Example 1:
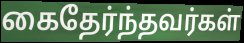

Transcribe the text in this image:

கைதேர்ந்தவர்கள்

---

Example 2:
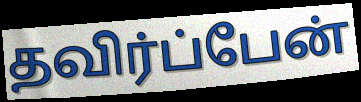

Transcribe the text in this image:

தவிர்ப்பேன்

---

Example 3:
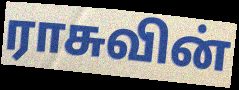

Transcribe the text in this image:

ராசுவின்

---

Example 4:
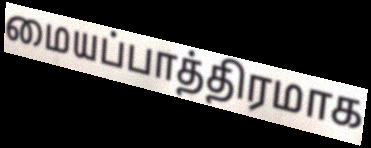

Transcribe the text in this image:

மையப்பாத்திரமாக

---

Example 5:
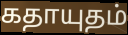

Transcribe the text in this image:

கதாயுதம்